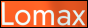
Lomax